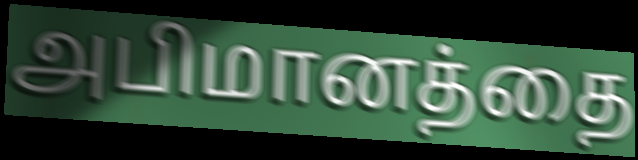
அபிமானத்தை